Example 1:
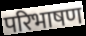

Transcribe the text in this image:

परिभाषण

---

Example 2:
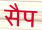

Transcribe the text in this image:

सैप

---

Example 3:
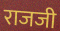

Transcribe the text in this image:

राजजी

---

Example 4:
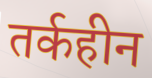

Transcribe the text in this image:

तर्कहीन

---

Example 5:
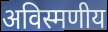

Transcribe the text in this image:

अविस्मणीय